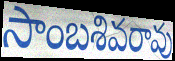
సాంబశివరావు